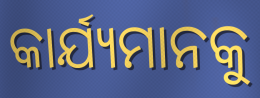
କାର୍ଯ୍ୟମାନକୁ